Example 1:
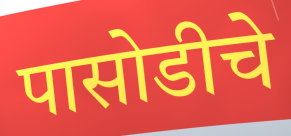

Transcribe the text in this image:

पासोडीचे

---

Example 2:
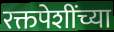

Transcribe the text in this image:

रक्तपेशींच्या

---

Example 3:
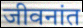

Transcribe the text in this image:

जीवनांत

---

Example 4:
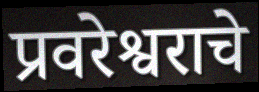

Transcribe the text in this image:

प्रवरेश्वराचे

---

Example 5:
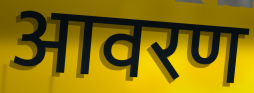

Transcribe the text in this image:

आवरण